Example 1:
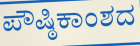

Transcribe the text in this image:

ಪೌಷ್ಠಿಕಾಂಶದ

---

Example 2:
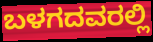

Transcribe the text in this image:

ಬಳಗದವರಲ್ಲಿ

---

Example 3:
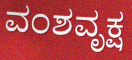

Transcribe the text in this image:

ವಂಶವೃಕ್ಷ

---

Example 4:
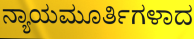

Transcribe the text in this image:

ನ್ಯಾಯಮೂರ್ತಿಗಳಾದ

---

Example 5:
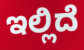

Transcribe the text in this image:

ಇಲ್ಲಿದೆ